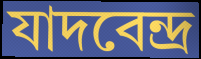
যাদবেন্দ্র